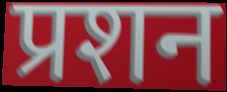
प्रशन